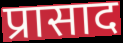
प्रासाद